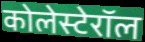
कोलेस्टेरॉल